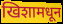
खिशामधून